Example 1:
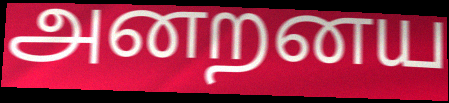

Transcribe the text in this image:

அனறனய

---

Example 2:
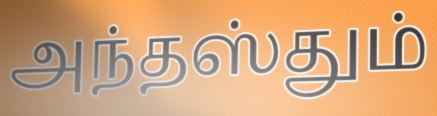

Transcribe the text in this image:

அந்தஸ்தும்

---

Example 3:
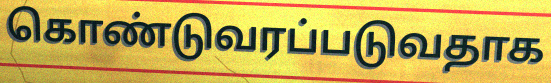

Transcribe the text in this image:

கொண்டுவரப்படுவதாக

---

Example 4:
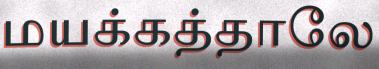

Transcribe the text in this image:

மயக்கத்தாலே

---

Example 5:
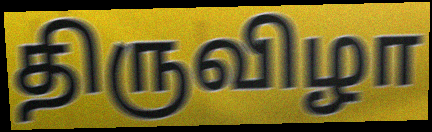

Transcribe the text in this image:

திருவிழா